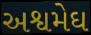
અશ્વમેઘ